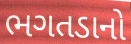
ભગતડાનો